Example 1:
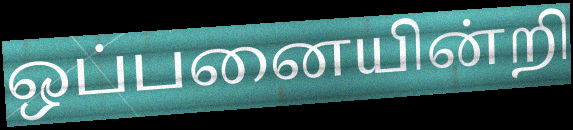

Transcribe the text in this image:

ஒப்பனையின்றி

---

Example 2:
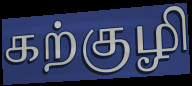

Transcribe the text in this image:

கற்குழி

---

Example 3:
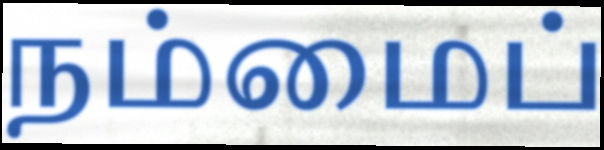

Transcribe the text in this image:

நம்மைப்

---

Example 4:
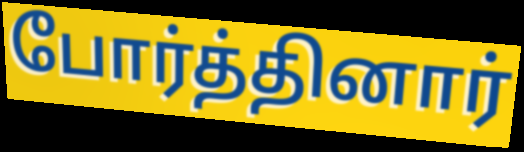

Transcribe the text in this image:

போர்த்தினார்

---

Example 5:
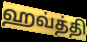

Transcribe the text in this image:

ஹவ்த்தி